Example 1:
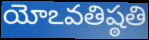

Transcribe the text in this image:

యోఽవతిష్ఠతి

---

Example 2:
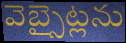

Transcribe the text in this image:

వెబ్సైట్లను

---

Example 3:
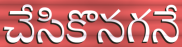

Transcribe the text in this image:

చేసికొనగనే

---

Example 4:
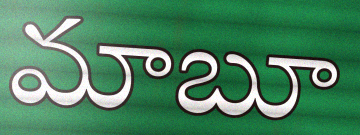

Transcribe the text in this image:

మాబూ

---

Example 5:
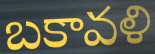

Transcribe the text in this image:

బకావళి